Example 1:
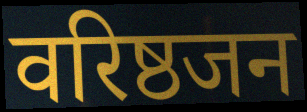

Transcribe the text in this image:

वरिष्ठजन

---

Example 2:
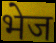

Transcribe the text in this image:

भेज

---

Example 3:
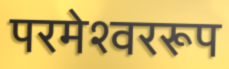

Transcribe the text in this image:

परमेश्वररूप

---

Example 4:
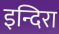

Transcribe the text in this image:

इन्दिरा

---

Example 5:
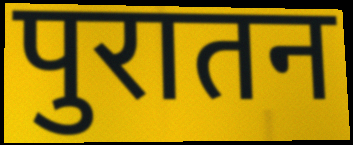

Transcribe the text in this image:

पुरातन